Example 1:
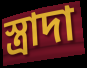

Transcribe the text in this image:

স্ত্রাদা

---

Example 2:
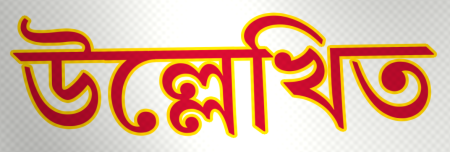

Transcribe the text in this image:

উল্লেখিত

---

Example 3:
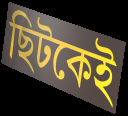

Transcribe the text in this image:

ছিটকেই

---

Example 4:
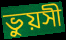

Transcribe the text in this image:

ভুয়সী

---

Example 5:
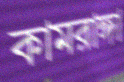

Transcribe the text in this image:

কামরাঙ্গা